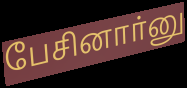
பேசினார்னு